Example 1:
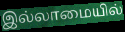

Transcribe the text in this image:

இல்லாமையில்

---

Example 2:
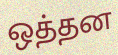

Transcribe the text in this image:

ஒத்தன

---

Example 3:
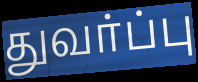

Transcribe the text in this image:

துவர்ப்பு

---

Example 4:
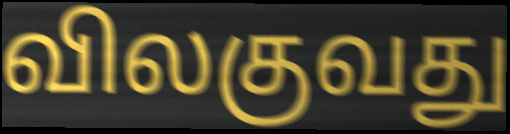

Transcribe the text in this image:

விலகுவது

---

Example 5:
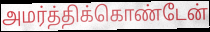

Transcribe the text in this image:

அமர்த்திக்கொண்டேன்